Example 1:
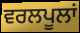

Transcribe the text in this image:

ਵਰਲਪੂਲਾਂ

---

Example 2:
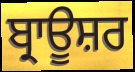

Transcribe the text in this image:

ਬ੍ਰਾਊਸ਼ਰ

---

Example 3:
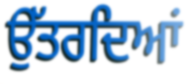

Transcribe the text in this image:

ਉੱਤਰਦਿਆਂ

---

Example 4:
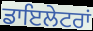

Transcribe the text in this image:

ਡਾਇਲੇਟਰਾਂ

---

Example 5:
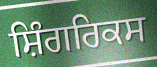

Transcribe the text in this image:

ਸ਼ਿੰਗਰਿਕਸ